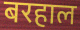
बरहाल